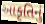
આકૃતિનું